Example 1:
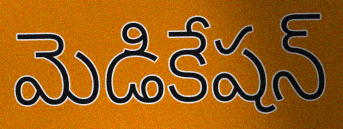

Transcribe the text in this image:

మెడికేషన్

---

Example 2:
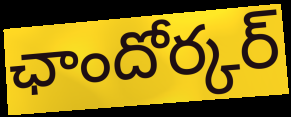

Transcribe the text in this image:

ఛాందోర్కర్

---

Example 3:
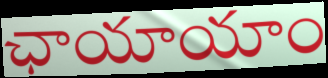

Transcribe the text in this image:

ఛాయాయాం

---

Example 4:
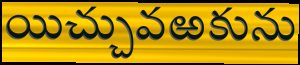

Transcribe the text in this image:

యిచ్చువఱకును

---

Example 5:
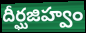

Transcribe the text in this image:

దీర్ఘజిహ్వం